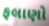
ફલાણો